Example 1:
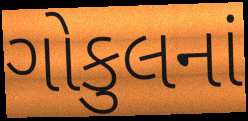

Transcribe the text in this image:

ગોકુલનાં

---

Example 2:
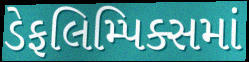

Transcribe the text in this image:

ડેફલિમ્પિક્સમાં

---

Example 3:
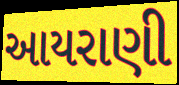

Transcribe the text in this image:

આયરાણી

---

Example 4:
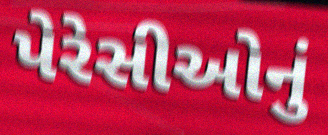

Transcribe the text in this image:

પેરેસીઓનું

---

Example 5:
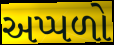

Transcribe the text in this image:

અપ્પળો